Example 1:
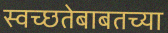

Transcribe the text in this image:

स्वच्छतेबाबतच्या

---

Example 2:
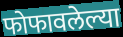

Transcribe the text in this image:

फोफावलेल्या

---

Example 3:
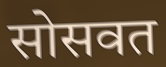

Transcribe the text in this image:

सोसवत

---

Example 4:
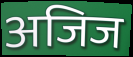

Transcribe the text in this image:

अजिज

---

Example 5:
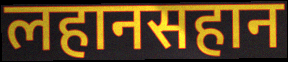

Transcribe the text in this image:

लहानसहान